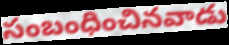
సంబంధించినవాడు